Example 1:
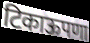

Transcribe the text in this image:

टिकाऊपणा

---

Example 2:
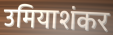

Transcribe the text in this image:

उमियाशंकर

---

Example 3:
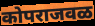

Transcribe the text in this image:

कोपराजवळ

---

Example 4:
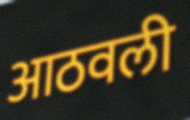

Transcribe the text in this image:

आठवली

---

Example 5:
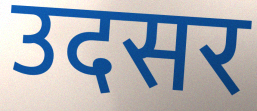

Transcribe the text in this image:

उदसर